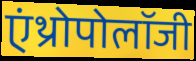
एंथ्रोपोलॉजी